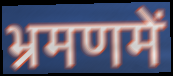
भ्रमणमें